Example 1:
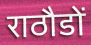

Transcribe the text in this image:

राठौडों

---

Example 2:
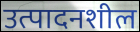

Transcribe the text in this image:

उत्पादनशील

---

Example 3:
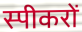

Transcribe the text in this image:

स्पीकरों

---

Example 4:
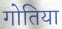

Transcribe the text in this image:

गोतिया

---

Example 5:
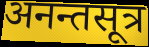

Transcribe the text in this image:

अनन्तसूत्र